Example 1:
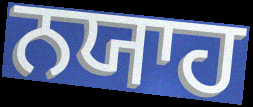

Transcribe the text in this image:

ਨਯਾਹ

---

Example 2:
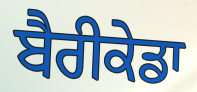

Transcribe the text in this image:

ਬੈਰੀਕੇਡਾ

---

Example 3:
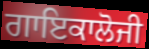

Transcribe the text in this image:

ਗਾਇਕਾਲੋਜੀ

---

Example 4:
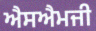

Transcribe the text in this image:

ਐਸਐਮਜੀ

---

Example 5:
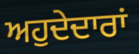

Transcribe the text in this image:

ਅਹੁਦੇਦਾਰਾਂ